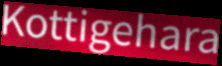
Kottigehara